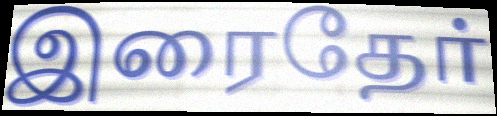
இரைதேர்